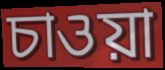
চাওয়া